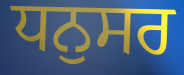
ਧਨੁਸਰ